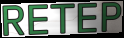
RETEP